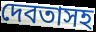
দেবতাসহ